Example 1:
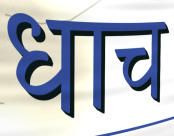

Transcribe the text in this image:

धाच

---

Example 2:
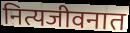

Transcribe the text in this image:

नित्यजीवनात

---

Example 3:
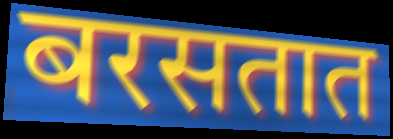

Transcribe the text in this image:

बरसतात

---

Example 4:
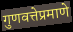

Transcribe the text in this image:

गुणवत्तेप्रमाणे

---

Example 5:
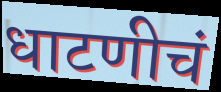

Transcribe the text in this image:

धाटणीचं